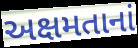
અક્ષમતાનાં